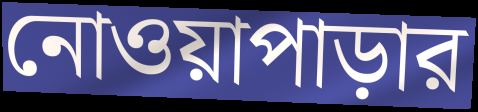
নোওয়াপাড়ার